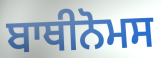
ਬਾਥੀਨੋਮਸ